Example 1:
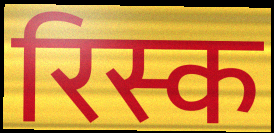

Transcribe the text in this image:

रिस्क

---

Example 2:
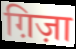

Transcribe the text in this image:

ग़िज़ा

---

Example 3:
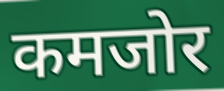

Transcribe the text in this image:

कमजोर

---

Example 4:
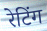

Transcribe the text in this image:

रेटिंग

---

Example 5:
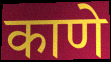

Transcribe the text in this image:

काणे